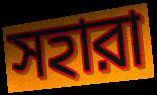
সহারা